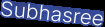
Subhasree